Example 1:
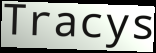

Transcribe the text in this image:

Tracys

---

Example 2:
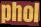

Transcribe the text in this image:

phol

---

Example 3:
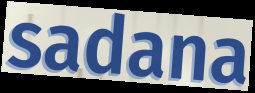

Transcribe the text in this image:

sadana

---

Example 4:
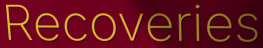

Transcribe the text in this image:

Recoveries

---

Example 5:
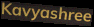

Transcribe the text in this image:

Kavyashree